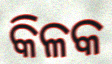
କିଳକ